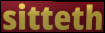
sitteth